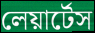
লেয়ার্টেস